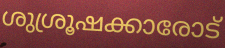
ശുശ്രൂഷക്കാരോട്